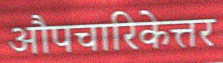
औपचारिकेत्तर